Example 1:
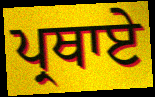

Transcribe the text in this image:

ਪ੍ਰਥਾਏ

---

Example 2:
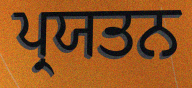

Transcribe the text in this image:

ਪ੍ਰਯਤਨ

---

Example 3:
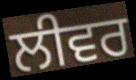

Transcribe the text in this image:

ਲੀਵਰ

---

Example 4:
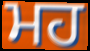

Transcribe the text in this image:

ਮਹ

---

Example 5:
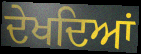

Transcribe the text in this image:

ਦੇਖਦਿਆਂ